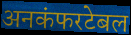
अनकंफरटेबल